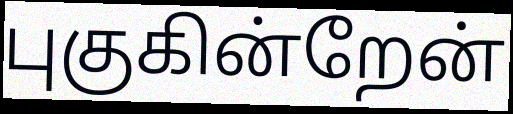
புகுகின்றேன்